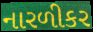
નારળીકર